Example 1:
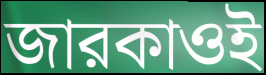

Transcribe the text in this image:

জারকাওই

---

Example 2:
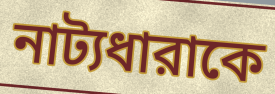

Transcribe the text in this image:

নাট্যধারাকে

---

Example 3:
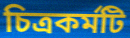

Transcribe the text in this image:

চিত্রকর্মটি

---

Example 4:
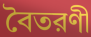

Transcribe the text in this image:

বৈতরণী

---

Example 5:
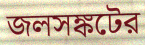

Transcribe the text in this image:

জলসঙ্কটের